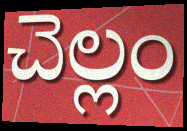
చెల్లం